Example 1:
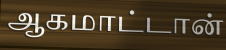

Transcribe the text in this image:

ஆகமாட்டான்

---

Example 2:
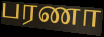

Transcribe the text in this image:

பரணா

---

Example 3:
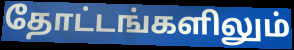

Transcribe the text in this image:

தோட்டங்களிலும்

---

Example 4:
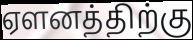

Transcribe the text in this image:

ஏளனத்திற்கு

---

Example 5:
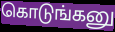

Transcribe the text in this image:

கொடுங்கனு